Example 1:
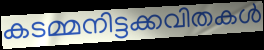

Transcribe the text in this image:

കടമ്മനിട്ടക്കവിതകൾ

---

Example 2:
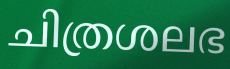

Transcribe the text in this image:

ചിത്രശലഭ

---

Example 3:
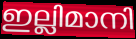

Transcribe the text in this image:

ഇല്ലിമാനി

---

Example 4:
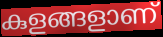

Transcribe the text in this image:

കുളങ്ങളാണ്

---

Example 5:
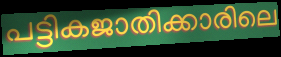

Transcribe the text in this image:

പട്ടികജാതിക്കാരിലെ